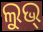
ଲୁଭ୍